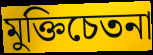
মুক্তিচেতনা